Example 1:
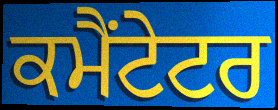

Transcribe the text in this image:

ਕਮੈਂਟੇਟਰ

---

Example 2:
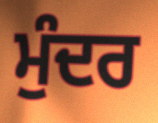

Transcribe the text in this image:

ਮੁੰਦਰ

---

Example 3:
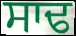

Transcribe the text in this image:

ਸਾਢ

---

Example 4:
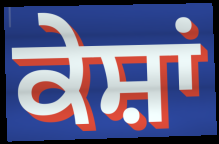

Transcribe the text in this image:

ਕੇਸ਼ਾਂ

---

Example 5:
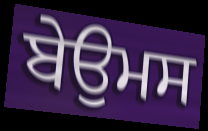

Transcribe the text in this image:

ਬੇਉਮਸ